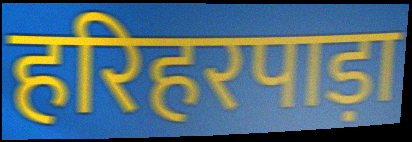
हरिहरपाड़ा